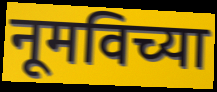
नूमविच्या